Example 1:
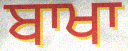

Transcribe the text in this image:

ਬਾਖਾ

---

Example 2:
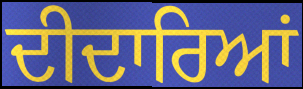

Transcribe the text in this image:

ਦੀਦਾਰਿਆਂ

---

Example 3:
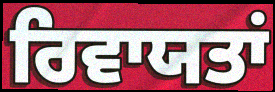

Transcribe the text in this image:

ਰਿਵਾਯਤਾਂ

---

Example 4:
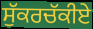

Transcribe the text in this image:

ਸੁੱਕਰਚੱਕੀਏ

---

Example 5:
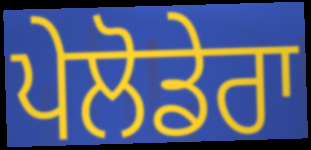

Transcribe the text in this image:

ਪੇਲੋਡੇਰਾ